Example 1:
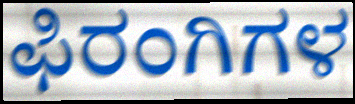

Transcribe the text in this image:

ಫಿರಂಗಿಗಳ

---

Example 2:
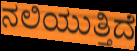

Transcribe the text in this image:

ನಲಿಯುತ್ತಿದೆ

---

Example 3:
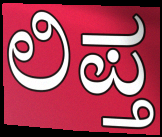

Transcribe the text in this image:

ಲಿಪ್ತ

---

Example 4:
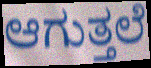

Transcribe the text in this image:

ಆಗುತ್ತಲೆ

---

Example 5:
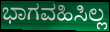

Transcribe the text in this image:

ಭಾಗವಹಿಸಿಲ್ಲ